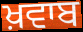
ਖ਼ਵਾਬ